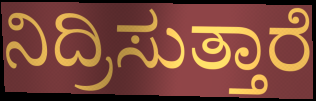
ನಿದ್ರಿಸುತ್ತಾರೆ